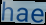
hae